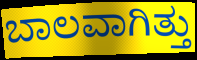
ಬಾಲವಾಗಿತ್ತು